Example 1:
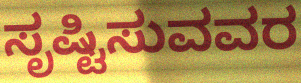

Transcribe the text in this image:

ಸೃಷ್ಟಿಸುವವರ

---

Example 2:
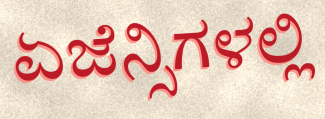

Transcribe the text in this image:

ಏಜೆನ್ಸಿಗಳಲ್ಲಿ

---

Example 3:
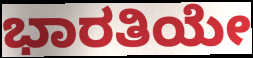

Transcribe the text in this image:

ಭಾರತಿಯೇ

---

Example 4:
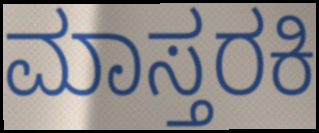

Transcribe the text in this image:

ಮಾಸ್ತರಕಿ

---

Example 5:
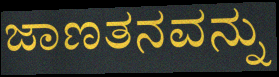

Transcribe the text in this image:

ಜಾಣತನವನ್ನು